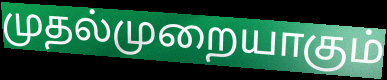
முதல்முறையாகும்